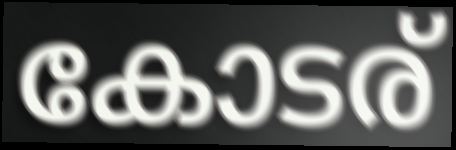
കോടര്